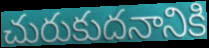
చురుకుదనానికి